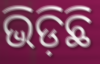
ଭିଡ଼ିଛି